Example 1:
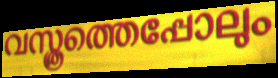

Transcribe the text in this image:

വസ്ത്രത്തെപ്പോലും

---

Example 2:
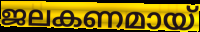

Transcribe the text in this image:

ജലകണമായ്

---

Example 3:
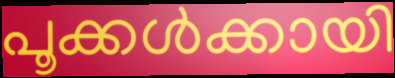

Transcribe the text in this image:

പൂക്കൾക്കായി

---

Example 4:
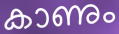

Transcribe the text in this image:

കാണും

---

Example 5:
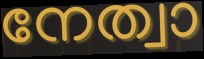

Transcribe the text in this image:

നേത്വാ